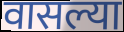
वासल्या